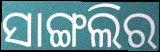
ସାଙ୍ଗଲିର